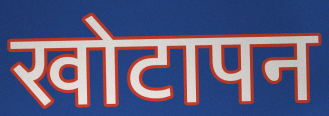
खोटापन